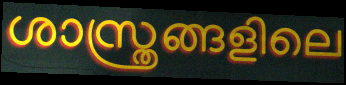
ശാസ്ത്രങ്ങളിലെ